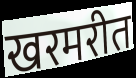
खरमरीत